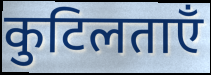
कुटिलताएँ